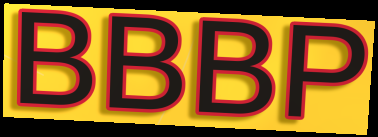
BBBP